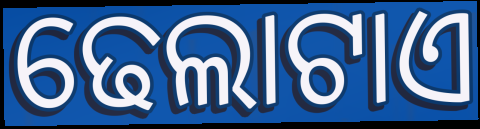
ଢେଲାଟାଏ